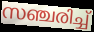
സഞ്ചരിച്ച്